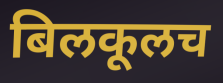
बिलकूलच